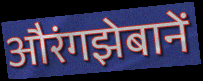
औरंगझेबानें